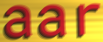
aar